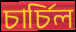
চার্চিল